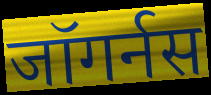
जॉगर्नस